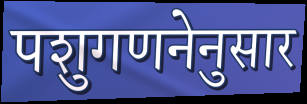
पशुगणनेनुसार